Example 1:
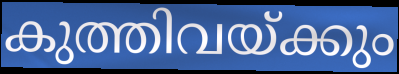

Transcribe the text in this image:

കുത്തിവയ്ക്കും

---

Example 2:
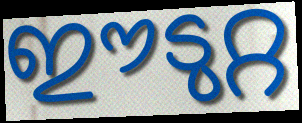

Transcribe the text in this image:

ഈടുറ്റ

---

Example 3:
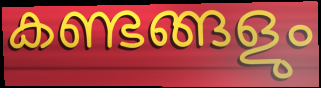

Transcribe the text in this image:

കണ്ടങ്ങളും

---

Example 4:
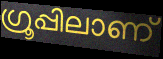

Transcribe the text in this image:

ഗ്രൂപ്പിലാണ്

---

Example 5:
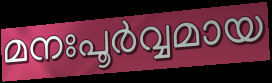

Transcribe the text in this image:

മനഃപൂർവ്വമായ